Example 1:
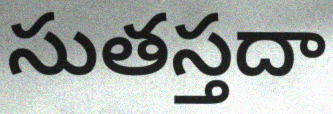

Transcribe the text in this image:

సుతస్తదా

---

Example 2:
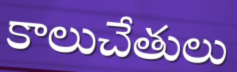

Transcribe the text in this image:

కాలుచేతులు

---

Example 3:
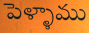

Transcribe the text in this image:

పెళ్ళాము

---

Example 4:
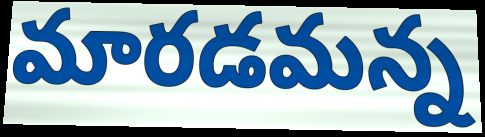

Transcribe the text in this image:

మారడమన్న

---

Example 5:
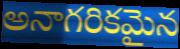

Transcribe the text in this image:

అనాగరికమైన